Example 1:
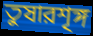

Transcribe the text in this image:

তুষারশৃঙ্গ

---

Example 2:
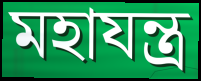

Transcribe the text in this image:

মহাযন্ত্র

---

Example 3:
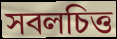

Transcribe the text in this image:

সবলচিত্ত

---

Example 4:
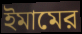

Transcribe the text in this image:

ইমামের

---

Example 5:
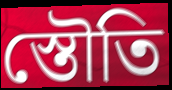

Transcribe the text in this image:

স্তৌতি